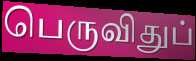
பெருவிதுப்